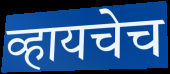
व्हायचेच